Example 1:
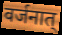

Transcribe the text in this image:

वर्जनात्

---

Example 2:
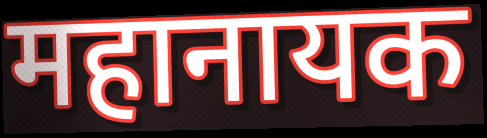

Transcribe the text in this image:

महानायक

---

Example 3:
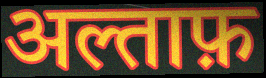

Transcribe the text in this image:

अल्ताफ़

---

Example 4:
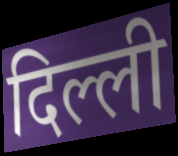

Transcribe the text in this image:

दिल्‍ली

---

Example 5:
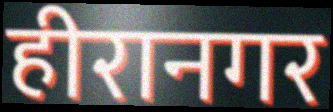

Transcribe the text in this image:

हीरानगर